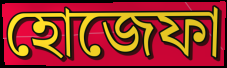
হোজেফা